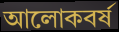
আলোকবর্ষ